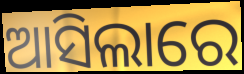
ଆସିଲାରେ